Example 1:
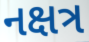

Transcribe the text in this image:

નક્ષત્ર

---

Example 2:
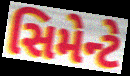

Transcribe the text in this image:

સિમેન્ટે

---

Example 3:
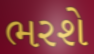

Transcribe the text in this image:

ભરશે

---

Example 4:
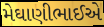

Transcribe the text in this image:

મેઘાણીભાઈએ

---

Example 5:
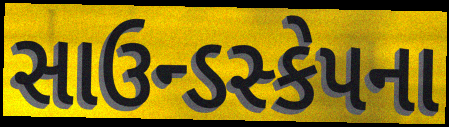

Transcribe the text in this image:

સાઉન્ડસ્કેપના